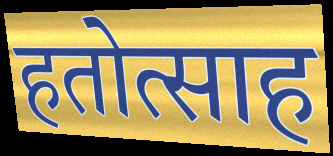
हतोत्साह